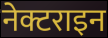
नेक्टराइन